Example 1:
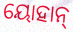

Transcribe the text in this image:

ୟୋହାନ୍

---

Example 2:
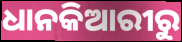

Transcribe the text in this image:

ଧାନକିଆରୀରୁ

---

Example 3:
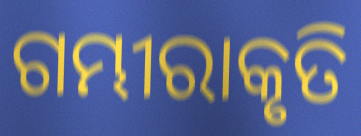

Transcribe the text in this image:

ଗମ୍ଭୀରାକୃତି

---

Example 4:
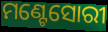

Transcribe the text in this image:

ମଣ୍ଟେସୋରୀ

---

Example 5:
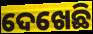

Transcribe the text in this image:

ଦେଖେଛି